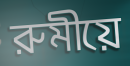
ৰুমীয়ে